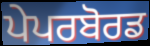
ਪੇਪਰਬੋਰਡ